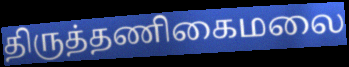
திருத்தணிகைமலை